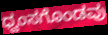
ಧ್ವಂಸಗೊಂಡವು